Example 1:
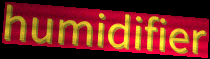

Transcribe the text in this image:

humidifier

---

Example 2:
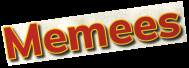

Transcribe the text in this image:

Memees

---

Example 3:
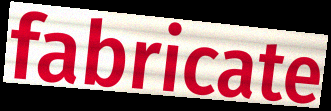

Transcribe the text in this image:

fabricate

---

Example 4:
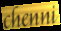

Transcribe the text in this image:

chenni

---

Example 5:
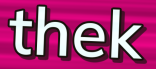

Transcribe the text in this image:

thek